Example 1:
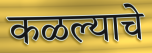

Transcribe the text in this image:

कळल्याचे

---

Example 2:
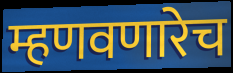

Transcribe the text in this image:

म्हणवणारेच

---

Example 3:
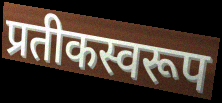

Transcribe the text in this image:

प्रतीकस्वरूप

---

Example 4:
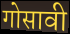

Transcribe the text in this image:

गोसावी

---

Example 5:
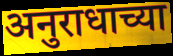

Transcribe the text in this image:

अनुराधाच्या